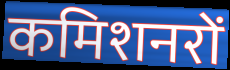
कमिशनरों